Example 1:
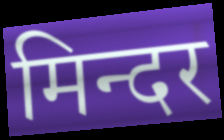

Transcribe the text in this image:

मिन्दर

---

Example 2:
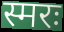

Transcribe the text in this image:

स्मरः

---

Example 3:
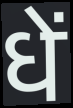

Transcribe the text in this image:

धें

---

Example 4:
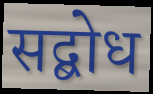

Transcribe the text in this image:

सद्बोध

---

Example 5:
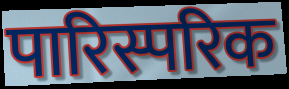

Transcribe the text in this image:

पारिस्परिक